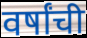
वर्षांची